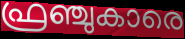
ഫ്രഞ്ചുകാരെ